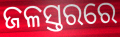
ଜଳସ୍ତରରେ